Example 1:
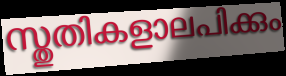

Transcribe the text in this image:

സ്തുതികളാലപിക്കും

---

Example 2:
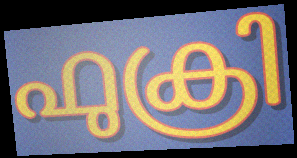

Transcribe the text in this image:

ഫുക്രി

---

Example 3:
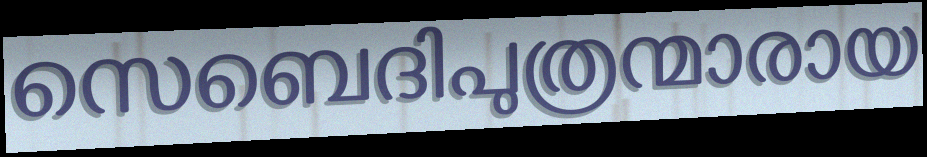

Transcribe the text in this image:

സെബെദിപുത്രന്മാരായ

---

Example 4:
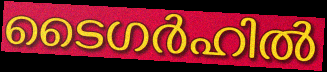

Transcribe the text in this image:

ടൈഗർഹിൽ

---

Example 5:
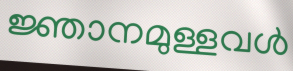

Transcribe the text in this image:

ജ്ഞാനമുള്ളവൾ